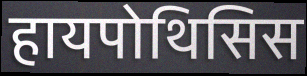
हायपोथिसिस